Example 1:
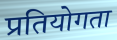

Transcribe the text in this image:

प्रतियोगता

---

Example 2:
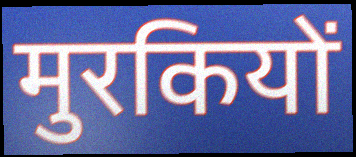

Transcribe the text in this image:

मुरकियों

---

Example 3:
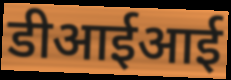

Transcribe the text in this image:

डीआईआई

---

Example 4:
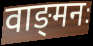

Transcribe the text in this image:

वाङ्मनः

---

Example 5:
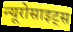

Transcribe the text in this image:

न्यूरोसाइट्स